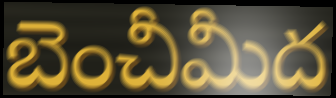
బెంచీమీద